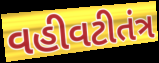
વહીવટીતંત્ર